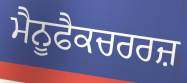
ਮੈਨੂਫੈਕਚਰਰਜ਼